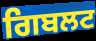
ਗਿਬਲਟ